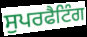
ਸੁਪਰਫੈਟਿੰਗ